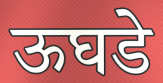
ऊघडे